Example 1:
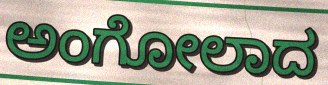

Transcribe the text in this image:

ಅಂಗೋಲಾದ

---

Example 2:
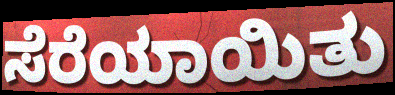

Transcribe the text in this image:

ಸೆರೆಯಾಯಿತು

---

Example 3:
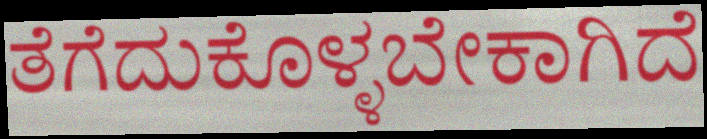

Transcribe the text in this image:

ತೆಗೆದುಕೊಳ್ಳಬೇಕಾಗಿದೆ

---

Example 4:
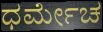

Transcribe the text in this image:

ಧರ್ಮೇಚ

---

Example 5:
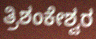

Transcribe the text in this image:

ತ್ರಿಶಂಕೇಶ್ವರ